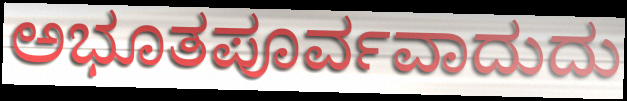
ಅಭೂತಪೂರ್ವವಾದುದು